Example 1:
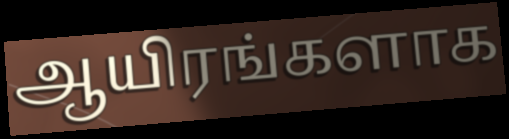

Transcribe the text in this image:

ஆயிரங்களாக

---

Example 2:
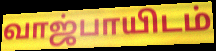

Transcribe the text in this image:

வாஜ்பாயிடம்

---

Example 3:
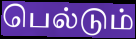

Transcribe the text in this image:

பெல்டும்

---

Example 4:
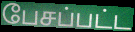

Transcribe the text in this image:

பேசப்பட்ட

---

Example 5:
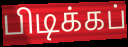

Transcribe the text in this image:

பிடிக்கப்